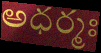
అధర్మః